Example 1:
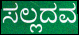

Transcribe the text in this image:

ಸಲ್ಲದವ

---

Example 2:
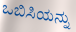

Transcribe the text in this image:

ಒಬಿಸಿಯನ್ನು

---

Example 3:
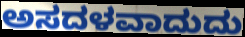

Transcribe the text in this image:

ಅಸದಳವಾದುದು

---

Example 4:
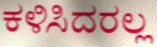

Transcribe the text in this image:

ಕಳಿಸಿದರಲ್ಲ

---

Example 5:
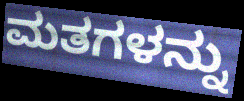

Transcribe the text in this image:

ಮತಗಳನ್ನು